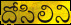
దోసిలిని